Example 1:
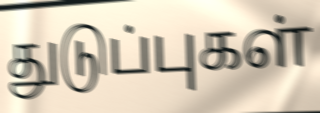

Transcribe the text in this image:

துடுப்புகள்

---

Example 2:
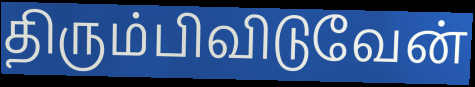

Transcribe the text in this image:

திரும்பிவிடுவேன்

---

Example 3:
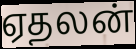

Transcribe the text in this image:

ஏதலன்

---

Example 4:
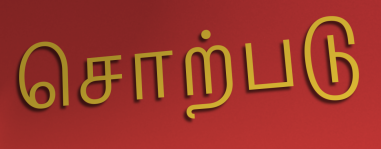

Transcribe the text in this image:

சொற்படு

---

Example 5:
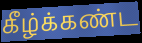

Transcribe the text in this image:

கீழ்க்கண்ட